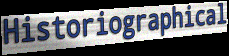
Historiographical